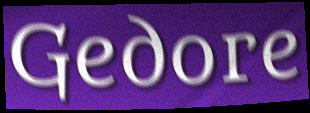
Gedore